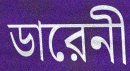
ডারেনী